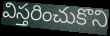
విస్తరించుకొని